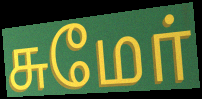
சுமேர்